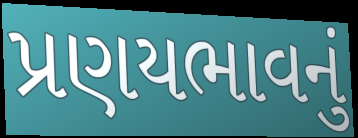
પ્રણયભાવનું